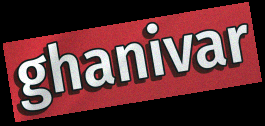
ghanivar